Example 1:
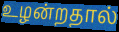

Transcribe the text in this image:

உழன்றதால்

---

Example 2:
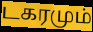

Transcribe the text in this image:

டகரமும்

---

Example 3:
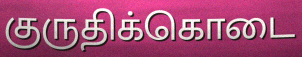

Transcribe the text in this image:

குருதிக்கொடை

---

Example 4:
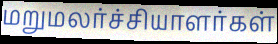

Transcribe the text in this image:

மறுமலர்ச்சியாளர்கள்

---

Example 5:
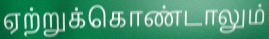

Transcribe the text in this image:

ஏற்றுக்கொண்டாலும்